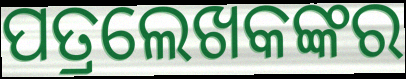
ପତ୍ରଲେଖକଙ୍କର